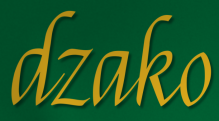
dzako